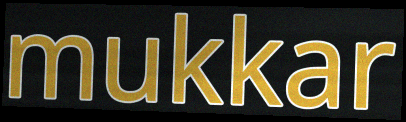
mukkar